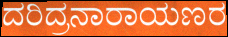
ದರಿದ್ರನಾರಾಯಣರ